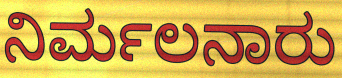
ನಿರ್ಮಲನಾರು